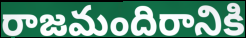
రాజమందిరానికి